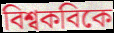
বিশ্বকবিকে